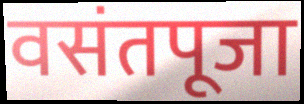
वसंतपूजा